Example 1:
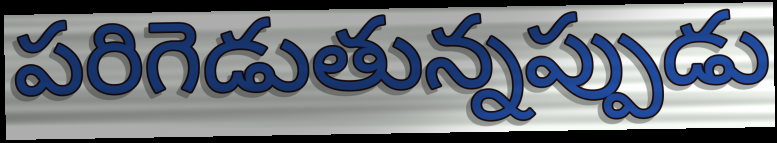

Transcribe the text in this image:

పరిగెడుతున్నప్పుడు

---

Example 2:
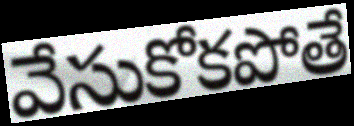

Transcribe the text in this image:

వేసుకోకపోతే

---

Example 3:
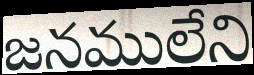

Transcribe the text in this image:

జనములేని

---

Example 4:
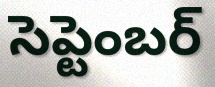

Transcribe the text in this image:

సెప్టెంబర్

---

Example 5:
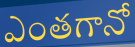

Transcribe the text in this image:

ఎంతగానో